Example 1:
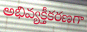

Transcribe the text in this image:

అభివ్యక్తీకరణగా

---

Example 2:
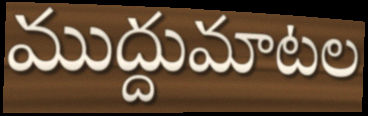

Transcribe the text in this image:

ముద్దుమాటల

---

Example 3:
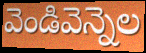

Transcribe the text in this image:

వెండివెన్నెల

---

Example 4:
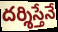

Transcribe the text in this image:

దర్శిస్తేనే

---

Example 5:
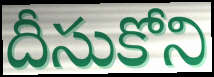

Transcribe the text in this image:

దీసుకోని